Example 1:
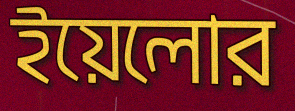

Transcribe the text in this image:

ইয়েলোর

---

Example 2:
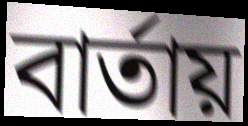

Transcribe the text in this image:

বার্তায়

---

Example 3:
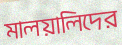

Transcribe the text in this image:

মালয়ালিদের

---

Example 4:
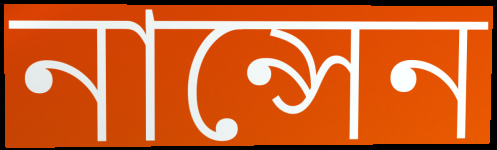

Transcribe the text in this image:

নান্সেন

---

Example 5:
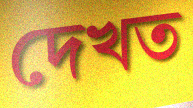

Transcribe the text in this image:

দেখত